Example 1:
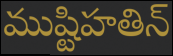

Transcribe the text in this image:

ముష్టిహతిన్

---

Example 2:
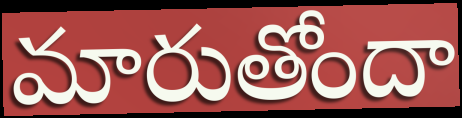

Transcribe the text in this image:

మారుతోందా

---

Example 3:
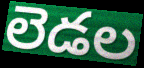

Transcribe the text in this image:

లెడల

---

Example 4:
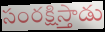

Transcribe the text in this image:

సంరక్షిస్తాడు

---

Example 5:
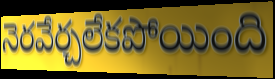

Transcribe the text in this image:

నెరవేర్చలేకపోయింది